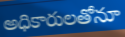
అధికారులతోనూ